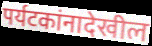
पर्यटकांनादेखील